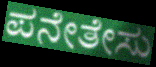
ಪನೇತೇಸು